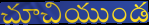
చూచియుండ